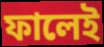
ফালেই